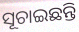
ସୂଚାଇଛନ୍ତି